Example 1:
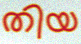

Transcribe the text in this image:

തിയ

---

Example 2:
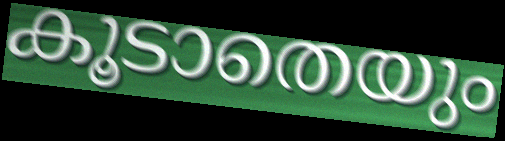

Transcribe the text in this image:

കൂടാതെയും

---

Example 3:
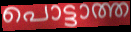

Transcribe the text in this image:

പൊട്ടാത്ത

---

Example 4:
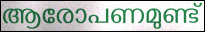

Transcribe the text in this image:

ആരോപണമുണ്ട്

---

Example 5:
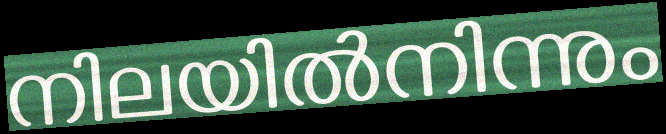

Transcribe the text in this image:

നിലയിൽനിന്നും